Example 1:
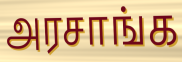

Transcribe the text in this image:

அரசாங்க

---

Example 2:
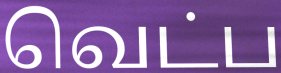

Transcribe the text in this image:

வெட்ப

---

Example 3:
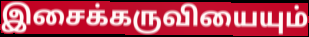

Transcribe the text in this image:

இசைக்கருவியையும்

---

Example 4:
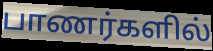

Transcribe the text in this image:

பாணர்களில்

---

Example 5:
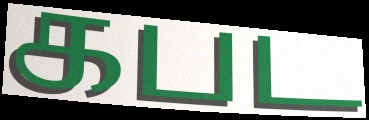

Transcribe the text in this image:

கபட